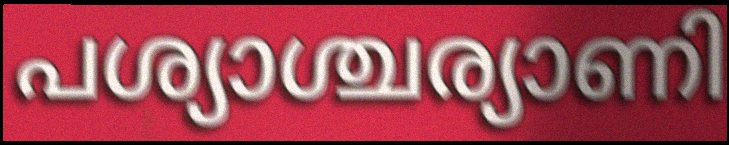
പശ്യാശ്ചര്യാണി